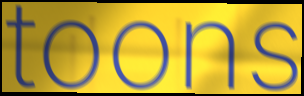
toons